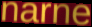
narne